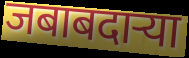
जबाबदाऱ्या